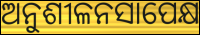
ଅନୁଶୀଳନସାପେକ୍ଷ